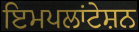
ਇਮਪਲਾਂਟੇਸ਼ਨ